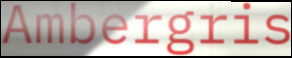
Ambergris